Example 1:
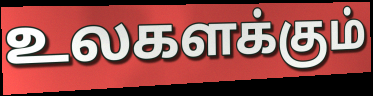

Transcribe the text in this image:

உலகளக்கும்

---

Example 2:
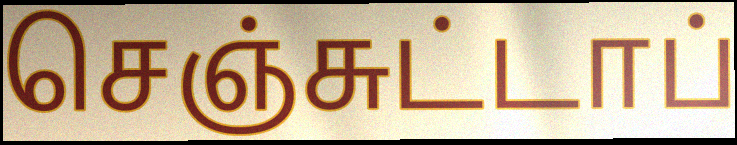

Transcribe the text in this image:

செஞ்சுட்டாப்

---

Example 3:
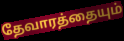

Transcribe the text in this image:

தேவாரத்தையும்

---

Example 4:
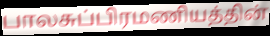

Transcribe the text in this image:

பாலசுப்பிரமணியத்தின்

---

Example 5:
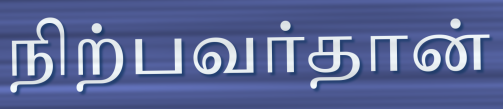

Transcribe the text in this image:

நிற்பவர்தான்